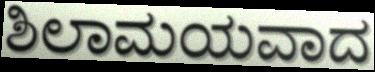
ಶಿಲಾಮಯವಾದ